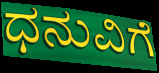
ಧನುವಿಗೆ